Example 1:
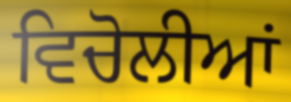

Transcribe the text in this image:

ਵਿਚੋਲੀਆਂ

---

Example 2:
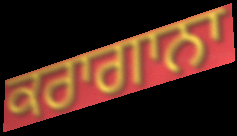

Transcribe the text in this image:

ਕਰਾਗਾਨਾ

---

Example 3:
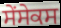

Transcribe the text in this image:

ਸੇਂਸੇਕਸ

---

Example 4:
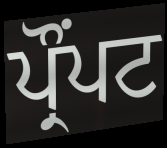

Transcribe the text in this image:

ਪ੍ਰੌੰਪਟ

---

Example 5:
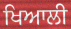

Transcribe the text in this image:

ਖਿਆਲੀ